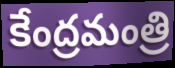
కేంద్రమంత్రి